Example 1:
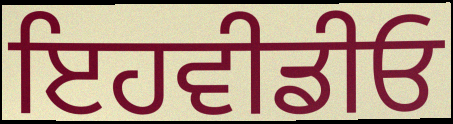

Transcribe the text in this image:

ਇਹਵੀਡੀਓ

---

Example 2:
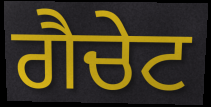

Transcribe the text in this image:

ਗੈਚੇਟ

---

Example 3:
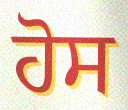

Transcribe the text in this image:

ਹੋਸ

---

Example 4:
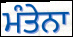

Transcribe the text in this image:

ਮੰਤੇਨਾ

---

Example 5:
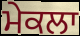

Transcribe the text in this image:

ਮੇਕਲਾ